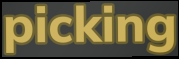
picking